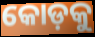
କୋଡ଼କୁ